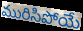
మురిసిపోయే